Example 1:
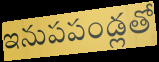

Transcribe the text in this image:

ఇనుపపండ్లతో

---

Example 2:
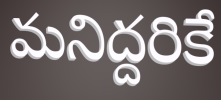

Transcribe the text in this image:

మనిద్దరికే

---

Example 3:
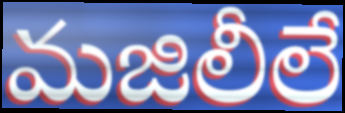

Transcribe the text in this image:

మజిలీలే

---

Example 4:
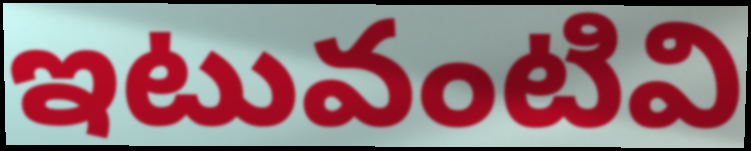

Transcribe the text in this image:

ఇటువంటివి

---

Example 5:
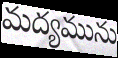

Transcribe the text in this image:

మద్యమును